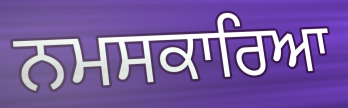
ਨਮਸਕਾਰਿਆ